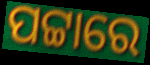
ପଟ୍ଟାରେ